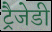
ट्रैजेडी